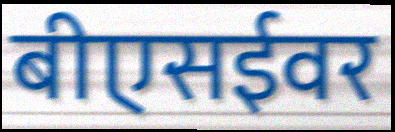
बीएसईवर